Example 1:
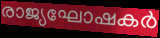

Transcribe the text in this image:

രാജ്യഘോഷകർ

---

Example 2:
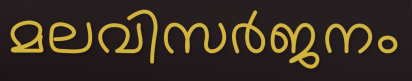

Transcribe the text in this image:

മലവിസർജനം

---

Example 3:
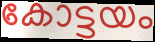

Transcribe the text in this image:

കോട്ടയം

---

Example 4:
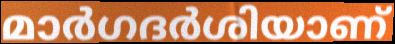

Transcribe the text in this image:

മാർഗദർശിയാണ്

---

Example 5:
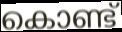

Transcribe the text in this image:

കൊണ്ട്